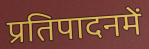
प्रतिपादनमें